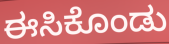
ಈಸಿಕೊಂಡು